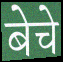
बेचे